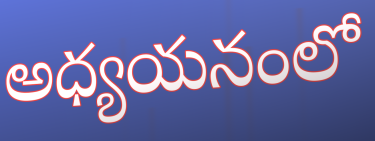
అధ్యయనంలో